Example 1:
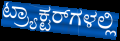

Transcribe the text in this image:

ಟ್ರ್ಯಾಕ್ಟರ್‌ಗಳಲ್ಲಿ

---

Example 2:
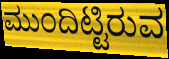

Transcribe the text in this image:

ಮುಂದಿಟ್ಟಿರುವ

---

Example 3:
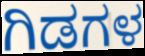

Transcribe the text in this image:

ಗಿಡಗಳ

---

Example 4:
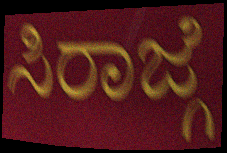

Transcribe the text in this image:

ಸಿರಾಜ್ಗೆ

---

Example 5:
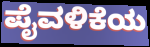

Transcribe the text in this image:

ಪೈವಳಿಕೆಯ